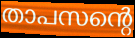
താപസന്റെ